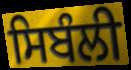
ਸਿਬੰਲੀ